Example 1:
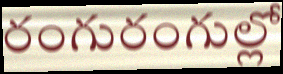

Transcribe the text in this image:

రంగురంగుల్లో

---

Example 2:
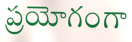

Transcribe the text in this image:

ప్రయోగంగా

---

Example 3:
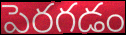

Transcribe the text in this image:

పెరగడం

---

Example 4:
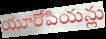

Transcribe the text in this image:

యూరోపియన్లు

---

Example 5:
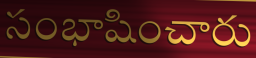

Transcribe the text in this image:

సంభాషించారు